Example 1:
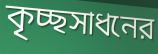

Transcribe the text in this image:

কৃচ্ছসাধনের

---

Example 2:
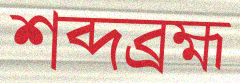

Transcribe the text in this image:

শব্দব্রহ্ম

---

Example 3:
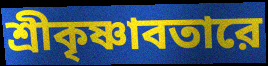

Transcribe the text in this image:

শ্রীকৃষ্ণাবতারে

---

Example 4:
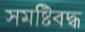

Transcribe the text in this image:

সমষ্টিবদ্ধ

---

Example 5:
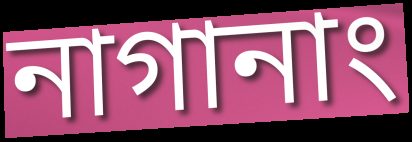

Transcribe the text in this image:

নাগানাং